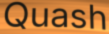
Quash